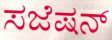
ಸಜೆಷನ್